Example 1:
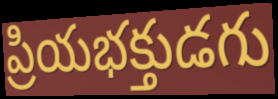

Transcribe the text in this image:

ప్రియభక్తుడగు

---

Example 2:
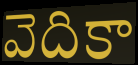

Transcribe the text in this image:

వెదికా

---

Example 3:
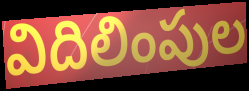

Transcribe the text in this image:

విదిలింపుల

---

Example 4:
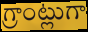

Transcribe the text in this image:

గ్రాంట్లుగా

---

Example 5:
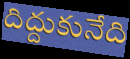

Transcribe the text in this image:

దిద్దుకునేది